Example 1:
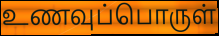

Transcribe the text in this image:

உணவுப்பொருள்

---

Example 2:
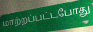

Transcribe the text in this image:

மாற்றப்பட்டபோது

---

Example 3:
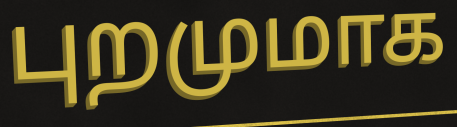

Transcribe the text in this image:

புறமுமாக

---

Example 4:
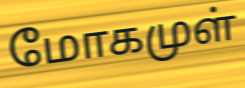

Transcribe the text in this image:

மோகமுள்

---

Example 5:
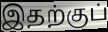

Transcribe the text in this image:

இதற்குப்